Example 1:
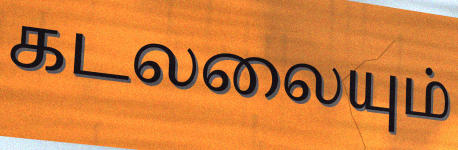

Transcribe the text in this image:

கடலலையும்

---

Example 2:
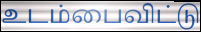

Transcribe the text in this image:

உடம்பைவிட்டு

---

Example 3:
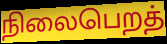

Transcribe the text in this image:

நிலைபெறத்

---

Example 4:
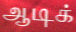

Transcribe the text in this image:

ஆடிக்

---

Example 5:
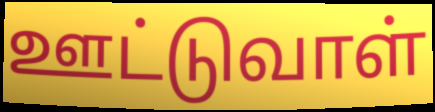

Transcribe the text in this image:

ஊட்டுவாள்